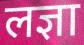
लज्ञा